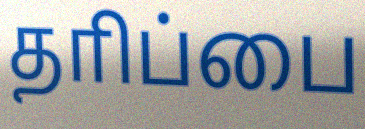
தரிப்பை